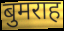
बुमराह